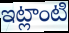
ఇట్లాంటి